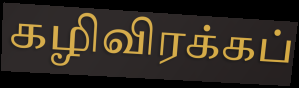
கழிவிரக்கப்